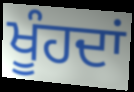
ਖੂੰਹਦਾਂ